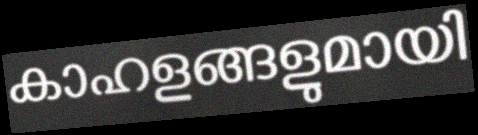
കാഹളങ്ങളുമായി